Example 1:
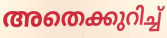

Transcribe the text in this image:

അതെക്കുറിച്ച്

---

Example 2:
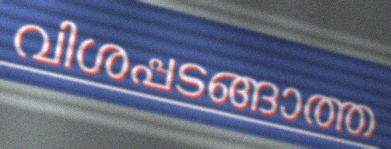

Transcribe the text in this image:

വിശപ്പടങ്ങാത്ത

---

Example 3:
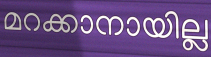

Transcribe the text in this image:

മറക്കാനായില്ല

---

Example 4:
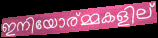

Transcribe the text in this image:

ഇനിയോര്മ്മകളില്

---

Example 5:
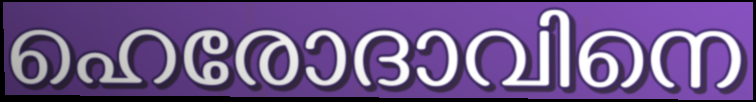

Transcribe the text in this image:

ഹെരോദാവിനെ